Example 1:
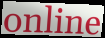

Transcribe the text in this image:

online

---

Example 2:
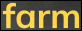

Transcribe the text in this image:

farm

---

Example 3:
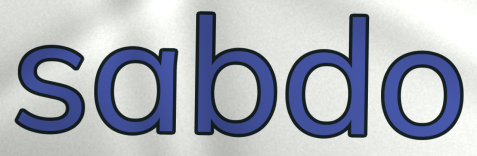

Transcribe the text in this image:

sabdo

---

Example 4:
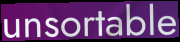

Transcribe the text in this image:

unsortable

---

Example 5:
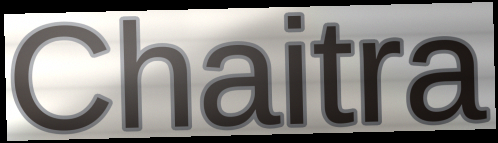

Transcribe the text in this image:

Chaitra